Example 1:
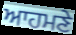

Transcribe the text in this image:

ਆਹਮਣੇ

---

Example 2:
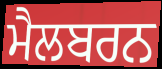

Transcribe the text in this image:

ਮੈਲਬਰਨ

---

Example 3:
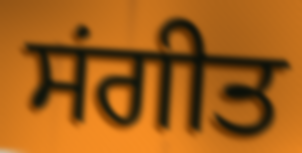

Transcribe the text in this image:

ਸਂਗੀਤ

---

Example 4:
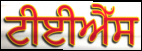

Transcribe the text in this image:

ਟੀਈਐੱਸ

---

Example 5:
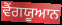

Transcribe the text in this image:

ਵੈਂਗਯੂਆਨ